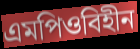
এমপিওবিহীন